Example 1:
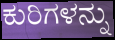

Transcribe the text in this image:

ಕುರಿಗಳನ್ನು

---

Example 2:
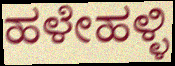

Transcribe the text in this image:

ಹಳೇಹಳ್ಳಿ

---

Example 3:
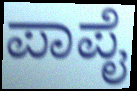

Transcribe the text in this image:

ಪಾಪೈ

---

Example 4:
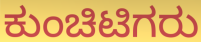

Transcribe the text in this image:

ಕುಂಚಿಟಿಗರು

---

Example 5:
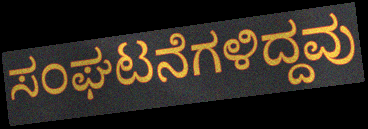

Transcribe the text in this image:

ಸಂಘಟನೆಗಳಿದ್ದವು